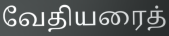
வேதியரைத்